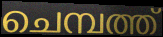
ചെമ്പത്ത്